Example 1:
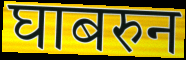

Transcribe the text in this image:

घाबरुन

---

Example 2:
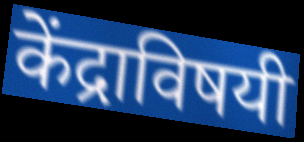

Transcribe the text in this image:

केंद्राविषयी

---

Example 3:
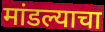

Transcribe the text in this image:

मांडल्याचा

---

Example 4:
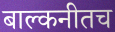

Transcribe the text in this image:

बाल्कनीतच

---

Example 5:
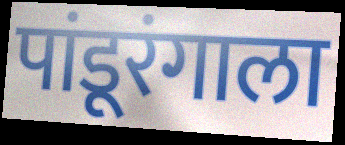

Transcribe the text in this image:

पांडूरंगाला